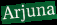
Arjuna